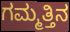
ಗಮ್ಮತ್ತಿನ